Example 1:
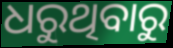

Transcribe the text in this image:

ଧରୁଥିବାରୁ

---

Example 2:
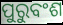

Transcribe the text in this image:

ପୁରୁବଂଶ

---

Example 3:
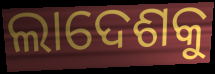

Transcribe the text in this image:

ଲାଦେଶକୁ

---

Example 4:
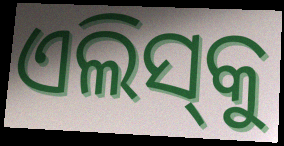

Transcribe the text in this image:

ଏଲିସ୍‌କୁ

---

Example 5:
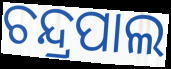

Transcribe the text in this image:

ଚନ୍ଦ୍ରପାଲ